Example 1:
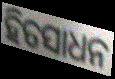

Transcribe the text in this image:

ହିତସାଧନ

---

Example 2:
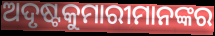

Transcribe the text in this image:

ଅଦୃଷ୍ଟକୁମାରୀମାନଙ୍କର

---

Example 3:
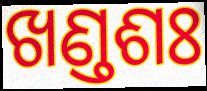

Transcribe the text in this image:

ଖଣ୍ଡଶଃ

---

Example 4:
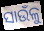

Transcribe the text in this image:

ସାଉଁଳୁ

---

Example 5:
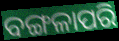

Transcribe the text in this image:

ବଙ୍ଗଳାପରି